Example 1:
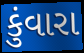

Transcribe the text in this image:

કુંવારા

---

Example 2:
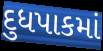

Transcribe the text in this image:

દુધપાકમાં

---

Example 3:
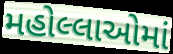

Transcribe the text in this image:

મહોલ્લાઓમાં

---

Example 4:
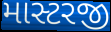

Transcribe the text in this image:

માસ્ટરજી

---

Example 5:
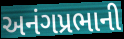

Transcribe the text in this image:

અનંગપ્રભાની